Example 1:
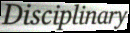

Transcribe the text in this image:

Disciplinary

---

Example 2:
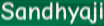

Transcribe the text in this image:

Sandhyaji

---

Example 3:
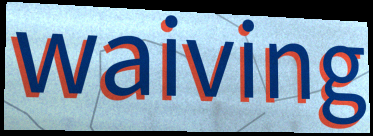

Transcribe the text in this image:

waiving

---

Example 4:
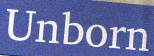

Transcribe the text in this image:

Unborn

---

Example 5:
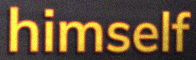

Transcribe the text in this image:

himself